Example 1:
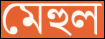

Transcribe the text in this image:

মেহুল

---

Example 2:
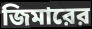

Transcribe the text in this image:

জিমারের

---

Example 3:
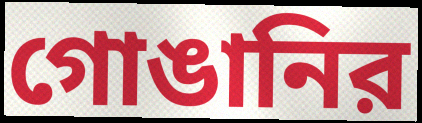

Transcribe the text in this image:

গোঙানির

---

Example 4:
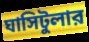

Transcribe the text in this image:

ঘাসিটুলার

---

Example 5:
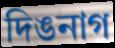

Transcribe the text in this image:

দিঙনাগ